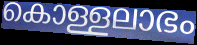
കൊള്ളലാഭം